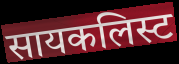
सायकलिस्ट